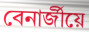
বেনাৰ্জীয়ে